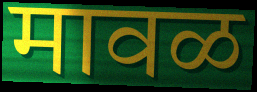
मावळ